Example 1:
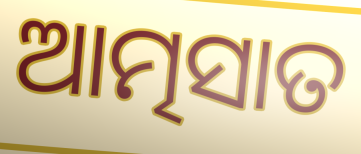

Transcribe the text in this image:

ଆତ୍ମସାତ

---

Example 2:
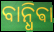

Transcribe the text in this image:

ବାନ୍ଧିଵା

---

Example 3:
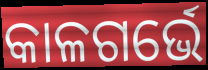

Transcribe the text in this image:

କାଳଗର୍ଭେ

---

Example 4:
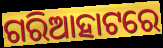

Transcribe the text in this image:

ଗରିଆହାଟରେ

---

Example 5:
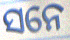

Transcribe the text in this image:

ସନେ